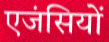
एजंसियों